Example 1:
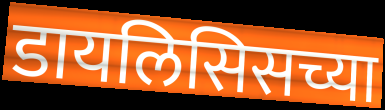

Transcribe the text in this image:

डायलिसिसच्या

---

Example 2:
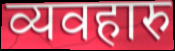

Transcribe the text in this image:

व्यवहारु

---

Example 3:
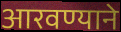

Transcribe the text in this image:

आरवण्याने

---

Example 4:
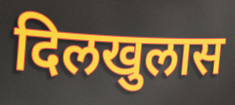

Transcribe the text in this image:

दिलखुलास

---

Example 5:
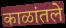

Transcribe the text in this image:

काळांतले